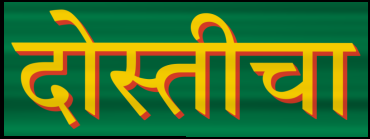
दोस्तीचा